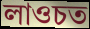
লাওচত